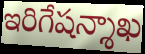
ఇరిగేషన్శాఖ